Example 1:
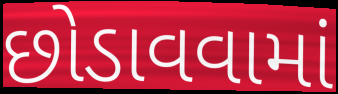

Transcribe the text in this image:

છોડાવવામાં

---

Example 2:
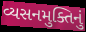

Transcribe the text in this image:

વ્યસનમુક્તિનું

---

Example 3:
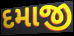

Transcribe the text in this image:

દમાજી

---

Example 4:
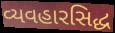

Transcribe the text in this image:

વ્યવહારસિદ્ધ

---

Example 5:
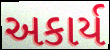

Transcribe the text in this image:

અકાર્ય